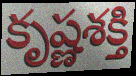
కృష్ణశక్తి